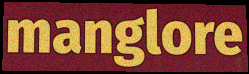
manglore